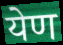
येण